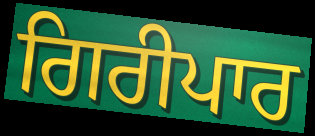
ਗਿਰੀਪਾਰ